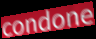
condone